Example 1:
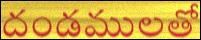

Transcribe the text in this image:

దండములతో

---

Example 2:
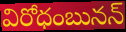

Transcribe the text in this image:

విరోధంబునన్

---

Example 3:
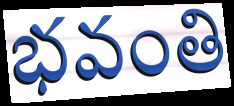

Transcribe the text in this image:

భవంతి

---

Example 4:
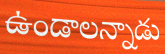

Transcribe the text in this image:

ఉండాలన్నాడు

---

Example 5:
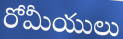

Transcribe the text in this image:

రోమీయులు